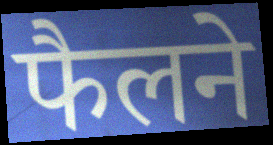
फैलने